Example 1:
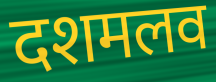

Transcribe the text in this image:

दशमलव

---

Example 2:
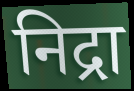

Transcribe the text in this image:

निद्रा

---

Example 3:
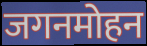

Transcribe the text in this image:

जगनमोहन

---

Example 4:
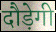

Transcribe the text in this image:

दौड़ेगी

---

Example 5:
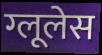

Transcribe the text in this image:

ग्लूलेस